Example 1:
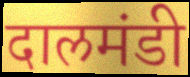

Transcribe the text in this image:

दालमंडी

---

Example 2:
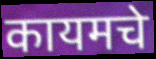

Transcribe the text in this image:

कायमचे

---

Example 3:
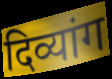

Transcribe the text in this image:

दिव्यांग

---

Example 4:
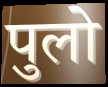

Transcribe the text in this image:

पुलो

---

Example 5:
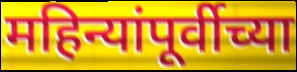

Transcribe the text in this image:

महिन्यांपूर्वीच्या